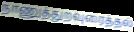
நாணுத்துறவுரைத்தல்